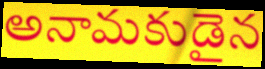
అనామకుడైన